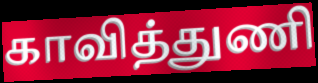
காவித்துணி